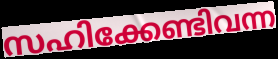
സഹിക്കേണ്ടിവന്ന